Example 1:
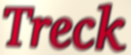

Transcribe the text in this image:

Treck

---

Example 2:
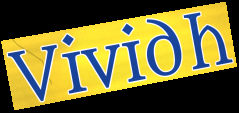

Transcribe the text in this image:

Vividh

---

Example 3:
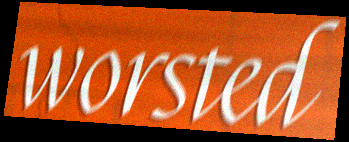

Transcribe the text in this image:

worsted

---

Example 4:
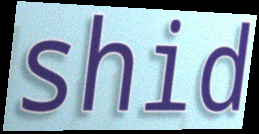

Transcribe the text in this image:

shid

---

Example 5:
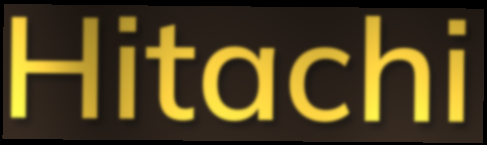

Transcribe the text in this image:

Hitachi